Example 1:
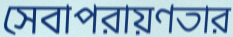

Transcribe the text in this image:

সেবাপরায়ণতার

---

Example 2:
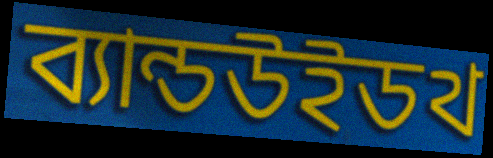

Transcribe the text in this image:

ব্যান্ডউইডথ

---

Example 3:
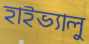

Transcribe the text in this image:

হাইভ্যালু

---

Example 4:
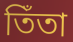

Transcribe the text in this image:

তিঁতা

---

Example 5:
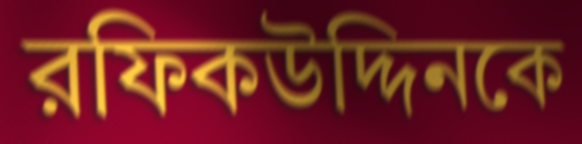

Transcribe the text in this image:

রফিকউদ্দিনকে